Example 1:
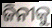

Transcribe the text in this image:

ଜିନୀକୁ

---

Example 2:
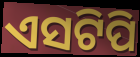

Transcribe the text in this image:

ଏସଟିପି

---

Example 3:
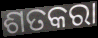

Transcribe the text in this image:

ଶତକରା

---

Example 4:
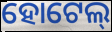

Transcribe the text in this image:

ହୋଟେଲ୍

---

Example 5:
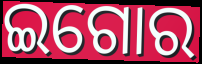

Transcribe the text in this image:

ଇଗୋର